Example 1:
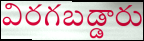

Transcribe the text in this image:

విరగబడ్డారు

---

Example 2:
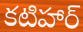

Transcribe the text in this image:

కటిహార్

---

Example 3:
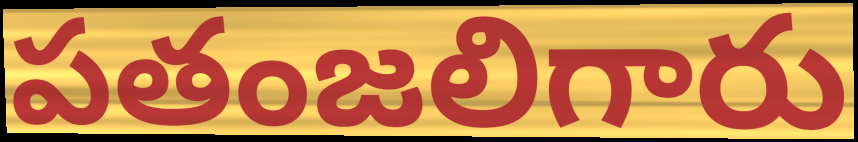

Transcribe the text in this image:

పతంజలిగారు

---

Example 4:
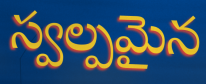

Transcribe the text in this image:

స్వల్పమైన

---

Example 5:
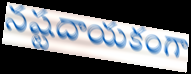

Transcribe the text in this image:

నష్టదాయకంగా